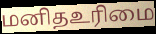
மனிதஉரிமை